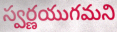
స్వర్ణయుగమని